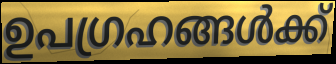
ഉപഗ്രഹങ്ങൾക്ക്